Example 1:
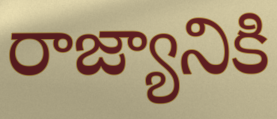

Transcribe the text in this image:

రాజ్యానికి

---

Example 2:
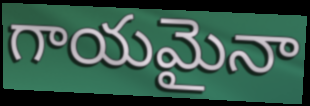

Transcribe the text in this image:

గాయమైనా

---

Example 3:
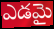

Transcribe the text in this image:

ఎడమై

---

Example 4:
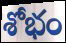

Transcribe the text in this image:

శోభం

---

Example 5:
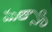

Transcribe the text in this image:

మత్స్యా